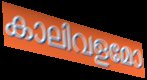
കാലിവളമോ